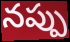
నప్పు